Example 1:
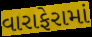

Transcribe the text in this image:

વારાફેરામાં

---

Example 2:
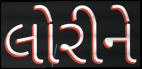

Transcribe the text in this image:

લોરીને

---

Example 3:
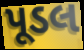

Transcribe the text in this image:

પૂડલ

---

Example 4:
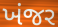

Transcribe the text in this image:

ખંજર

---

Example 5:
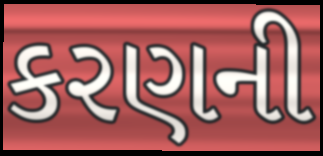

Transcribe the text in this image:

કરણની